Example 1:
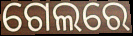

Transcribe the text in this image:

ଗେଲରେ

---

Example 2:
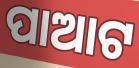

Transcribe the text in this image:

ପାଆଟ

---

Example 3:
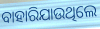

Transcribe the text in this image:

ବାହାରିଯାଉଥିଲେ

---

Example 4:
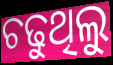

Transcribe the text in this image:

ଚଢୁଥିଲୁ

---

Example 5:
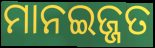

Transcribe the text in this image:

ମାନଇଜ୍ଜତ